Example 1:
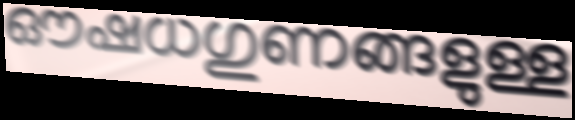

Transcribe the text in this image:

ഔഷധഗുണങ്ങളുള്ള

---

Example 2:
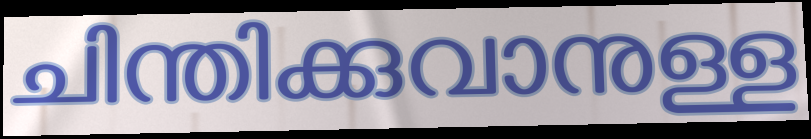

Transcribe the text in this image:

ചിന്തിക്കുവാനുള്ള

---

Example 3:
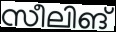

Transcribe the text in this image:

സീലിങ്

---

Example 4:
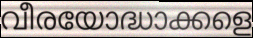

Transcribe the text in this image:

വീരയോദ്ധാക്കളെ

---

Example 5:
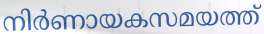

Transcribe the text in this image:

നിർണായകസമയത്ത്